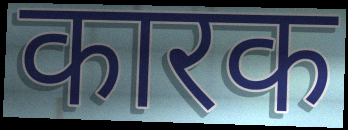
कारक